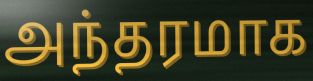
அந்தரமாக